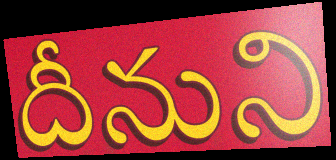
దీనుని